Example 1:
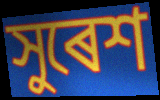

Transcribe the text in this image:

সুৰেশ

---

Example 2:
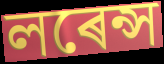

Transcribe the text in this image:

লৰেন্স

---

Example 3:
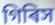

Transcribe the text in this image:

গিৰিস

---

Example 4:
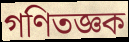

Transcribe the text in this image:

গণিতজ্ঞক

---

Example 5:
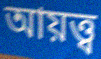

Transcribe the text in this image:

আয়ত্ত্ব